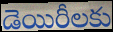
డెయిరీలకు